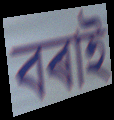
বৰাই